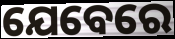
ଯେବେରେ